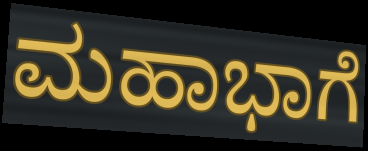
ಮಹಾಭಾಗೆ